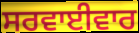
ਸਰਵਾਈਵਾਰ